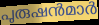
പുരുഷൻമാർ